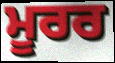
ਮੂਰਰ